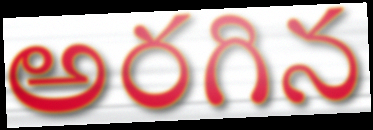
అరగిన